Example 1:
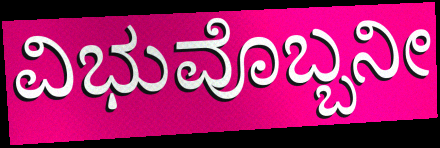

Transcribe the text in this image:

ವಿಭುವೊಬ್ಬನೀ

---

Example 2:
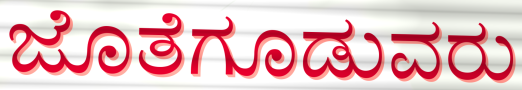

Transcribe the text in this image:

ಜೊತೆಗೂಡುವರು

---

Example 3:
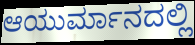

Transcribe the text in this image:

ಆಯುರ್ಮಾನದಲ್ಲಿ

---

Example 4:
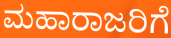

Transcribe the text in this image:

ಮಹಾರಾಜರಿಗೆ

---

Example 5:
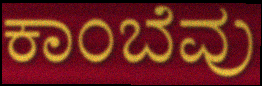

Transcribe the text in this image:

ಕಾಂಬೆವು